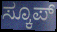
ಸ್ಕೂಪ್